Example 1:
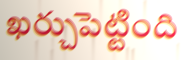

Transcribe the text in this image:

ఖర్చుపెట్టింది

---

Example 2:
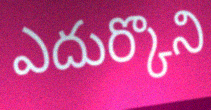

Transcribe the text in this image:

ఎదుర్కొని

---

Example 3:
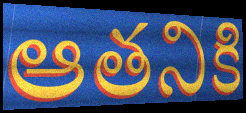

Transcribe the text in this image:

ఆతనికి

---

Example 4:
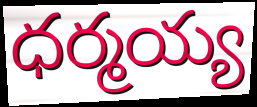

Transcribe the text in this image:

ధర్మయ్య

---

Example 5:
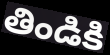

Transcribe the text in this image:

తిండికి